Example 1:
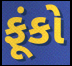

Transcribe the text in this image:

ફૂંકો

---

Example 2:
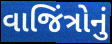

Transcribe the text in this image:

વાજિંત્રોનું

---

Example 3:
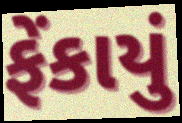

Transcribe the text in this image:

ફેંકાયું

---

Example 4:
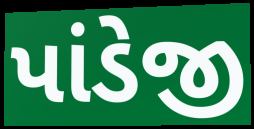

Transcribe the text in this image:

પાંડેજી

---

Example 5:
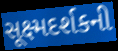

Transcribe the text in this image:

સૂક્ષ્મદર્શકની